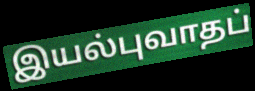
இயல்புவாதப்